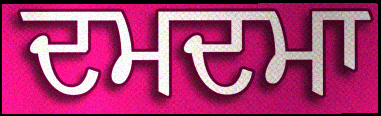
ਦਮਦਮਾ